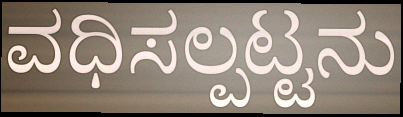
ವಧಿಸಲ್ಪಟ್ಟನು